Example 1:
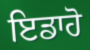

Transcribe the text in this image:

ਇਡਾਹੋ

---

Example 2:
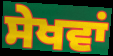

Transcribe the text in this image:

ਸੇਖਵਾਂ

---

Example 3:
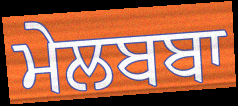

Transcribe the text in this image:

ਮੇਲਬਬਾ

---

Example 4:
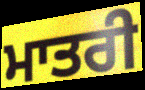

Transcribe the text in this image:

ਮਾਤਰੀ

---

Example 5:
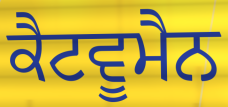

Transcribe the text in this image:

ਕੈਟਵੂਮੈਨ